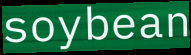
soybean